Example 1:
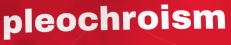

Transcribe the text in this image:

pleochroism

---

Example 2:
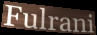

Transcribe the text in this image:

Fulrani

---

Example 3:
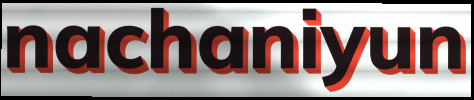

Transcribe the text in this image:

nachaniyun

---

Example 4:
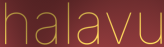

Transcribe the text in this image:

halavu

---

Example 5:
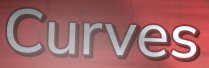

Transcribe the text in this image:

Curves